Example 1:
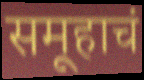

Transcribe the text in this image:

समूहाचं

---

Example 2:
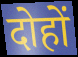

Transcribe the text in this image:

दोहों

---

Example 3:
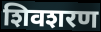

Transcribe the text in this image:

शिवशरण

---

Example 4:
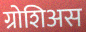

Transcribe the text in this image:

ग्रोशिअस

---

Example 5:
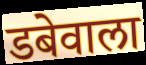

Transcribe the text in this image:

डबेवाला